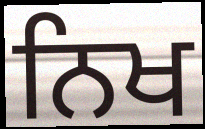
ਨਿਖ